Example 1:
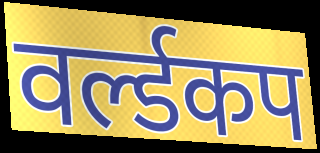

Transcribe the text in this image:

वर्ल्डकप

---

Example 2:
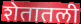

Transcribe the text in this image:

शेतातली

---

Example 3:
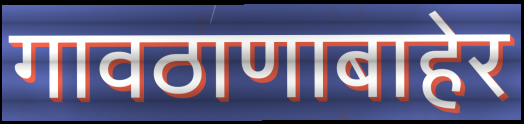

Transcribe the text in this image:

गावठाणाबाहेर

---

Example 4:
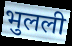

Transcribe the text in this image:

भुलली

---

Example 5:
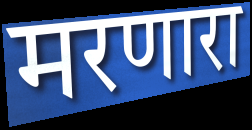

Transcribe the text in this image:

मरणारा